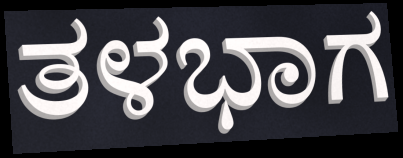
ತಳಭಾಗ